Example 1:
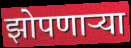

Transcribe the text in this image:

झोपणार्‍या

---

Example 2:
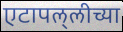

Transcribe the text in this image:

एटापल्लीच्या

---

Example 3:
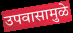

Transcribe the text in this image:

उपवासामुळे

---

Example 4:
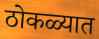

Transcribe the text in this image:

ठोकळ्यात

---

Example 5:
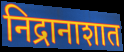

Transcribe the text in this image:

निद्रानाशात